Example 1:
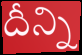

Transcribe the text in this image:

దీన్ని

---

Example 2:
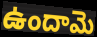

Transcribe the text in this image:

ఉందామె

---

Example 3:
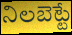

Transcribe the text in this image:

నిలబెట్టే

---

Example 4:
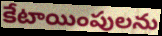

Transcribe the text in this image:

కేటాయింపులను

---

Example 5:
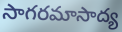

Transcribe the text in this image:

సాగరమాసాద్య